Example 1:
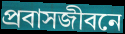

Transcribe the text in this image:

প্রবাসজীবনে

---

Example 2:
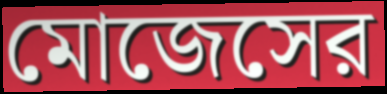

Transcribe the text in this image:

মোজেসের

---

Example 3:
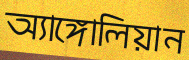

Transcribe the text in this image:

অ্যাঙ্গোলিয়ান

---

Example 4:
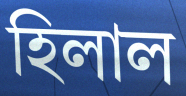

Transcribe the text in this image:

হিলাল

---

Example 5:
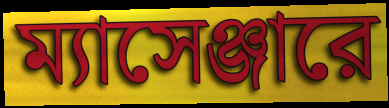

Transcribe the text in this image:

ম্যাসেঞ্জারে